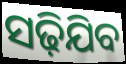
ସଢ଼ିଯିବ